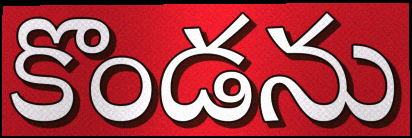
కొండను